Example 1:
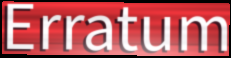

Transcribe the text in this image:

Erratum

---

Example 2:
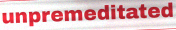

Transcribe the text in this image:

unpremeditated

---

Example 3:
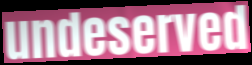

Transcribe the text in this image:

undeserved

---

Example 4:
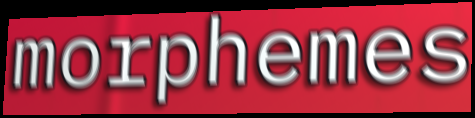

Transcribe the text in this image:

morphemes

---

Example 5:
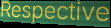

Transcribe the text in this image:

Respective